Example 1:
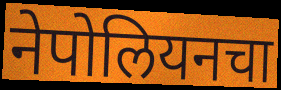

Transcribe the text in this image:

नेपोलियनचा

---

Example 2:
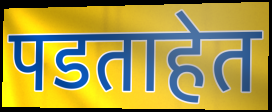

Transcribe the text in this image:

पडताहेत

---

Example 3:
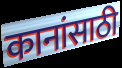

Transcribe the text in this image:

कानांसाठी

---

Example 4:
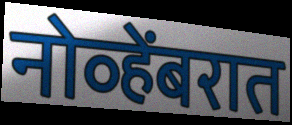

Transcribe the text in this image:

नोव्हेंबरात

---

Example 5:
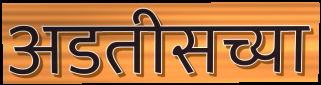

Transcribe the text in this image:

अडतीसच्या